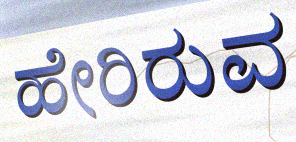
ಹೇರಿರುವ